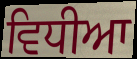
ਵਿਧੀਆ